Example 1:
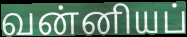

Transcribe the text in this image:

வன்னியப்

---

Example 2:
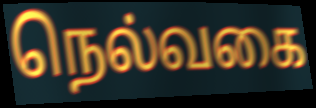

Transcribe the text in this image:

நெல்வகை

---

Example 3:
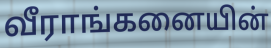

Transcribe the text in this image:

வீராங்கனையின்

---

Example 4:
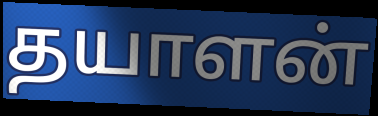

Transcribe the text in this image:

தயாளன்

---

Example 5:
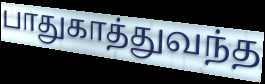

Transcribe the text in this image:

பாதுகாத்துவந்த